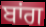
ਬਾਂਗ